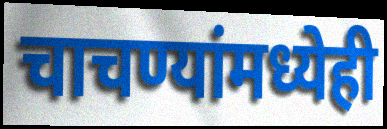
चाचण्यांमध्येही